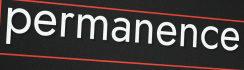
permanence